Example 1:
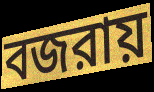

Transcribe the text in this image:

বজরায়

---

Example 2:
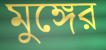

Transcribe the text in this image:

মুঙ্গের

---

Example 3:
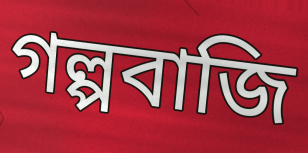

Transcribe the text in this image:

গল্পবাজি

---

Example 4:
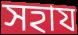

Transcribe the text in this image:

সহায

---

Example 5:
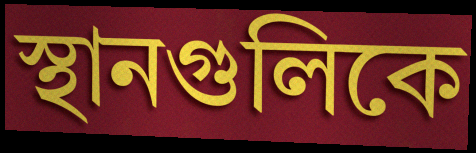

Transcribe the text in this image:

স্থানগুলিকে